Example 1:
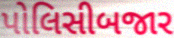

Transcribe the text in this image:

પોલિસીબજાર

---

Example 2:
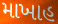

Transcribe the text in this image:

માખાહ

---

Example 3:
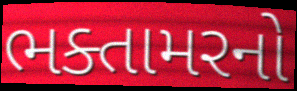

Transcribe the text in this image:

ભક્તામરનો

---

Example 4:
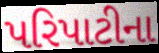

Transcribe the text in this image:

પરિપાટીના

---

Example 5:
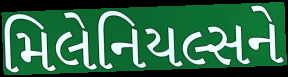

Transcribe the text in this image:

મિલેનિયલ્સને